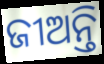
ଜୀଅନ୍ତି